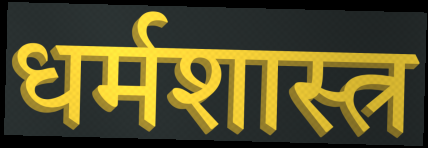
धर्मशास्त्र